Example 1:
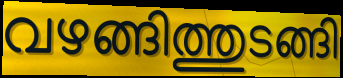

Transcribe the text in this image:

വഴങ്ങിത്തുടങ്ങി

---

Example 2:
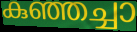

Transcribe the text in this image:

കുഞ്ഞച്ചാ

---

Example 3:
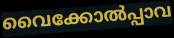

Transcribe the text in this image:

വൈക്കോൽപ്പാവ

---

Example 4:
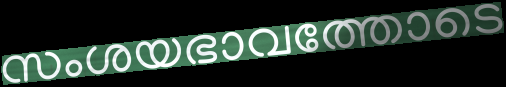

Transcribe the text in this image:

സംശയഭാവത്തോടെ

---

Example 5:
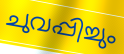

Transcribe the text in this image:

ചുവപ്പിച്ചും